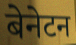
बेनेटन